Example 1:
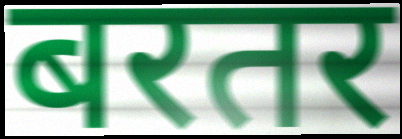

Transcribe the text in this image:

बरतर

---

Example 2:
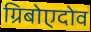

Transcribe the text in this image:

ग्रिबोएदोव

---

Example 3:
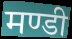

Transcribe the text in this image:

मण्डी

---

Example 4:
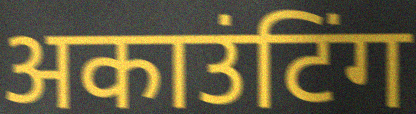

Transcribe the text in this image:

अकाउंटिंग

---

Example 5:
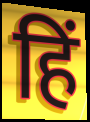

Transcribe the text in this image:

हिं